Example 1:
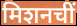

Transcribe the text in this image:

मिशनचीं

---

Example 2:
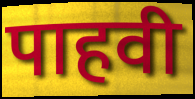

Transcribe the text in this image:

पाहवी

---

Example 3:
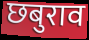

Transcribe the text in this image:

छबुराव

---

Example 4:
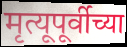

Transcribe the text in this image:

मृत्यूपूर्वीच्या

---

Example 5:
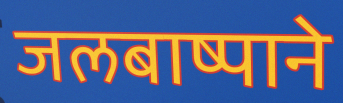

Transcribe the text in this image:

जलबाष्पाने